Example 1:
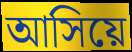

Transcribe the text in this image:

আসিয়ে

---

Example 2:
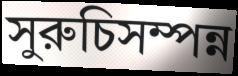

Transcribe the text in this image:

সুরুচিসম্পন্ন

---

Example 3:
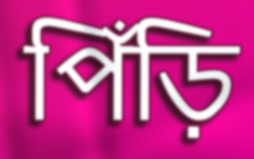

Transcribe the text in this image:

পিঁড়ি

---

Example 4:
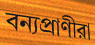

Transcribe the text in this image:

বন্যপ্রাণীরা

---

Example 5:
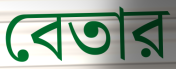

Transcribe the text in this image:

বেতার